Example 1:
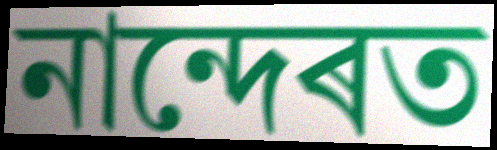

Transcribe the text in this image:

নান্দেৰত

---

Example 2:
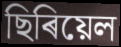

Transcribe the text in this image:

ছিৰিয়েল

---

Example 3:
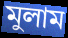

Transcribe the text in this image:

মুলাম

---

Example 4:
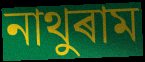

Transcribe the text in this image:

নাথুৰাম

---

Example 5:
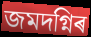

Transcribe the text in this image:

জমদগ্নিৰ